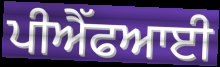
ਪੀਐੱਫਆਈ